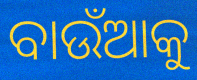
ବାଉଁଆକୁ